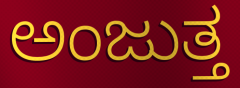
ಅಂಜುತ್ತ